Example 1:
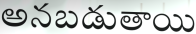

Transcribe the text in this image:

అనబడుతాయి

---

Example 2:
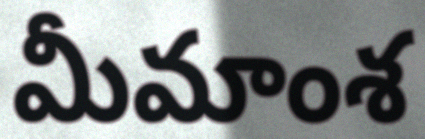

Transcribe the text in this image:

మీమాంశ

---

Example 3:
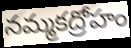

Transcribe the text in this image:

నమ్మకద్రోహం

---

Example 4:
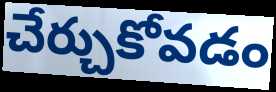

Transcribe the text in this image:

చేర్చుకోవడం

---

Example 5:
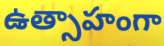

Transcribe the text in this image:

ఉత్సాహంగా